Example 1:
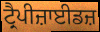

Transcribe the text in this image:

ਟ੍ਰੈਪੀਜ਼ਾਈਡਜ਼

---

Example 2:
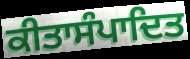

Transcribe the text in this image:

ਕੀਤਾਸੰਪਾਦਿਤ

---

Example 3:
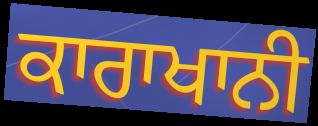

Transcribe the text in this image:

ਕਾਰਾਖਾਨੀ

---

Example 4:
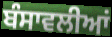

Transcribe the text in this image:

ਬੰਸਾਵਲੀਆਂ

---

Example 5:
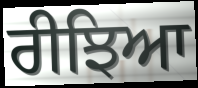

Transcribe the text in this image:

ਰੀਝਿਆ